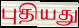
புதியது